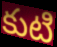
కుటి